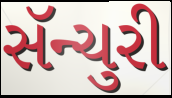
સૅન્ચુરી